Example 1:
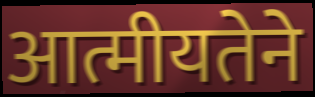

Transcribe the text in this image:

आत्मीयतेने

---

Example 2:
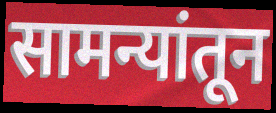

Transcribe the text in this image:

सामन्यांतून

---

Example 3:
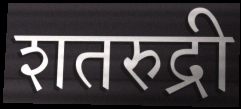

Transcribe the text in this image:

शतरुद्री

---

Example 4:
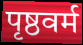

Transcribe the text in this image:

पृष्ठवर्म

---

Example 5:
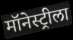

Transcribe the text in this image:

मॉनेस्ट्रीला